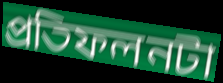
প্রতিফলনটা